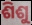
ଶିଶୁ